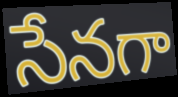
సేనగా